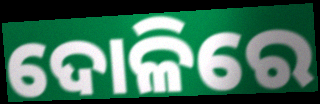
ଦୋଳିରେ